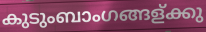
കുടുംബാംഗങ്ങള്ക്കു